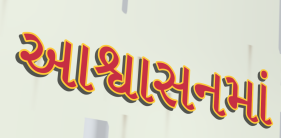
આશ્વાસનમાં